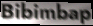
Bibimbap